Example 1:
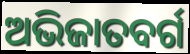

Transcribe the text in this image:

ଅଭିଜାତବର୍ଗ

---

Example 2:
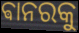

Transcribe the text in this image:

ଵାନରକୁ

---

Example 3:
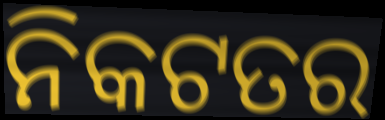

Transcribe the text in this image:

ନିକଟତର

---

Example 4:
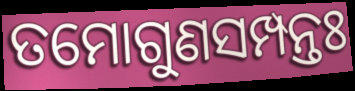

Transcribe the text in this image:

ତମୋଗୁଣସମ୍ପନ୍ତଃ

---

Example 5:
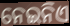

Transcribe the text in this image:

ନେଇନିଏ